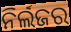
ନିର୍ଲଜର